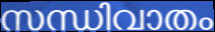
സന്ധിവാതം